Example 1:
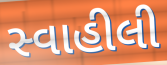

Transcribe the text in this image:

સ્વાહીલી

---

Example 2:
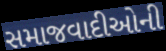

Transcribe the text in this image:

સમાજવાદીઓની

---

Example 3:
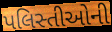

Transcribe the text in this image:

પલિસ્તીઓની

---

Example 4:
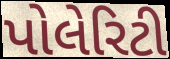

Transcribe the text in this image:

પોલેરિટી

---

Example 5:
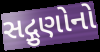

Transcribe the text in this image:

સદ્ગુણોનો